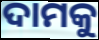
ଦାମକୁ